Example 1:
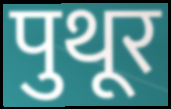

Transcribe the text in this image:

पुथूर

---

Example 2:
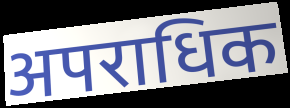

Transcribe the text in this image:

अपराधिक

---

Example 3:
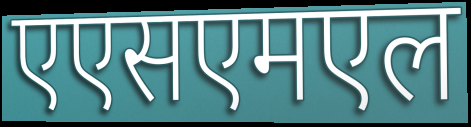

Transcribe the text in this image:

एएसएमएल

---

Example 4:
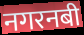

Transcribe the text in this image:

नगरनबी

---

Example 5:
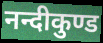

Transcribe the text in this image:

नन्दीकुण्ड